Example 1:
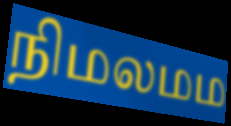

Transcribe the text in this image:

நிமலமம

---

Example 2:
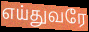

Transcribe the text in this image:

எய்துவரே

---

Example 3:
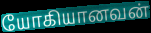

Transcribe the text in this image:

யோகியானவன்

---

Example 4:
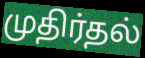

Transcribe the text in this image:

முதிர்தல்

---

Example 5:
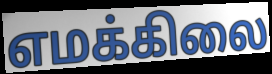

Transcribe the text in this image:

எமக்கிலை